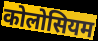
कोलोसियम